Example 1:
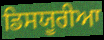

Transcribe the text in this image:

ਡਿਸਯੂਰੀਆ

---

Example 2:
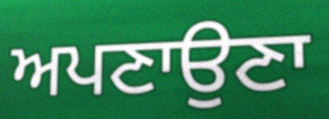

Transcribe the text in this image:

ਅਪਣਾਉਣਾ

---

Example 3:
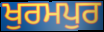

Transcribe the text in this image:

ਖੁਰਮਪੁਰ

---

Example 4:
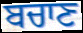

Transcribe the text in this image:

ਬਚਾਣ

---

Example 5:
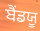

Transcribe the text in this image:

ਬੈਂਡਯੂ